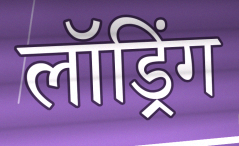
लॉड्रिंग